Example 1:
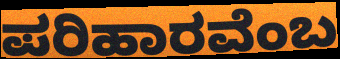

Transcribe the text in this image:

ಪರಿಹಾರವೆಂಬ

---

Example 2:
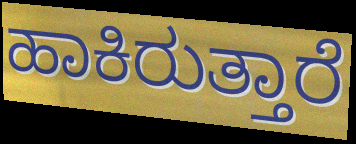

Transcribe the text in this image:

ಹಾಕಿರುತ್ತಾರೆ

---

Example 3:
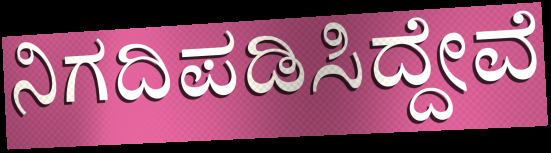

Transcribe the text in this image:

ನಿಗದಿಪಡಿಸಿದ್ದೇವೆ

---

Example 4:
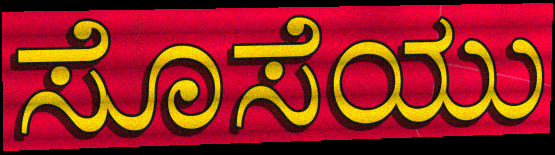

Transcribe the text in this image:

ಸೊಸೆಯು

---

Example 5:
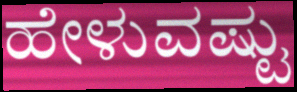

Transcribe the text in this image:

ಹೇಳುವಷ್ಟು